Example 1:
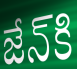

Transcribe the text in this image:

జేన్‌కి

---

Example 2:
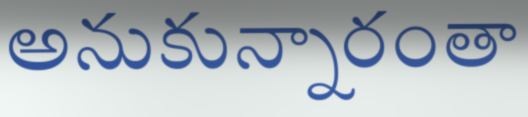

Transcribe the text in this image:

అనుకున్నారంతా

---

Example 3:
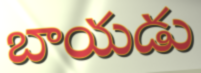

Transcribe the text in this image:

బాయడు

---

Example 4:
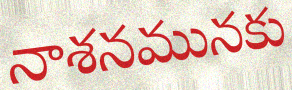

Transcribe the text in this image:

నాశనమునకు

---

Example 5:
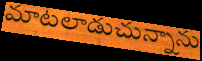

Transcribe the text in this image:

మాటలాడుచున్నాను